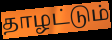
தாழட்டும்